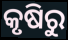
କୃଷିରୁ